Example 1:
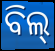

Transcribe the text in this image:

ବିଲ୍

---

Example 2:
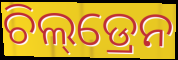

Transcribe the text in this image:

ଚିଲ୍‌ଡ୍ରେନ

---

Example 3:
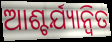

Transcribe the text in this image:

ଆଶ୍ଚର୍ଯ୍ୟାନ୍ୱିତ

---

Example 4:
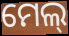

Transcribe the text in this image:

ମେଲ୍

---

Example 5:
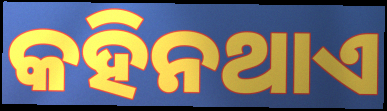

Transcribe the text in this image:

କହିନଥାଏ